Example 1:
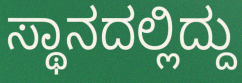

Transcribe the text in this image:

ಸ್ಥಾನದಲ್ಲಿದ್ದು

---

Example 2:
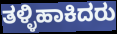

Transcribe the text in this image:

ತಳ್ಳಿಹಾಕಿದರು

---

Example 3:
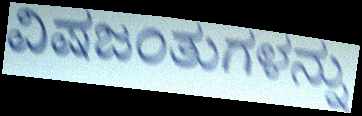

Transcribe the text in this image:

ವಿಷಜಂತುಗಳನ್ನು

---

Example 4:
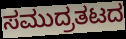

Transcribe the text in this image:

ಸಮುದ್ರತಟದ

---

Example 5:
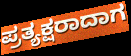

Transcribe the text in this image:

ಪ್ರತ್ಯಕ್ಷರಾದಾಗ